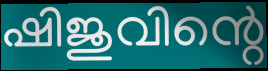
ഷിജുവിന്റെ